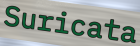
Suricata